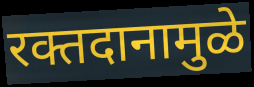
रक्तदानामुळे